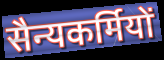
सैन्यकर्मियों